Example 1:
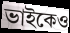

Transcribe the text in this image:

ভাইকেও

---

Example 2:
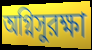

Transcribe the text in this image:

অগ্নিসুরক্ষা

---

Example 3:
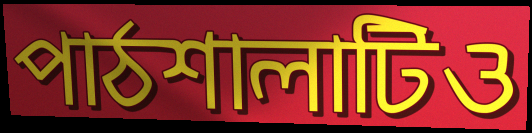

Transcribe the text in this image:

পাঠশালাটিও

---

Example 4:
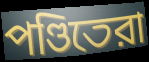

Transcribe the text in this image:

পণ্ডিতেরা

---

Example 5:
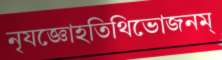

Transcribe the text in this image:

নৃযজ্ঞোহতিথিভোজনম্